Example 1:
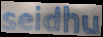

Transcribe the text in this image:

seidhu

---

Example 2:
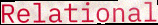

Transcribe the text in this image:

Relational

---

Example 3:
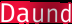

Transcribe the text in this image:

Daund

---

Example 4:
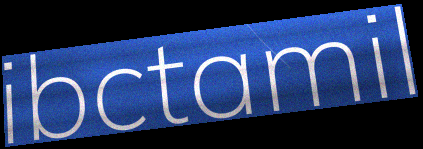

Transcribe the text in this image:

ibctamil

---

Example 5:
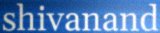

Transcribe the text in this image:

shivanand